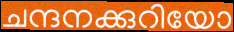
ചന്ദനക്കുറിയോ